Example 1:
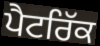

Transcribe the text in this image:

ਪੈਟਰਿੱਕ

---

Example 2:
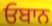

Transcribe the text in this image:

ਓਬਾਨ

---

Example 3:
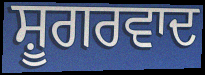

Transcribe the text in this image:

ਸ਼ੂਗਰਵਾਦ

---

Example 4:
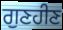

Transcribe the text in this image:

ਗੁਣਹੀਣ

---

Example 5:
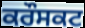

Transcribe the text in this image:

ਕਰੌਸਕਟ